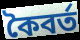
কৈবর্ত